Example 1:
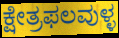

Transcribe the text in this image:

ಕ್ಷೇತ್ರಫಲವುಳ್ಳ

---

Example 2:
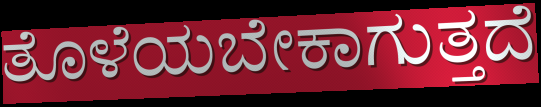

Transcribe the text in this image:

ತೊಳೆಯಬೇಕಾಗುತ್ತದೆ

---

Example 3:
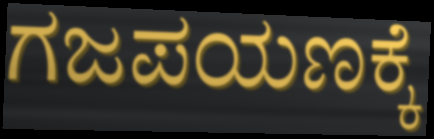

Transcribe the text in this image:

ಗಜಪಯಣಕ್ಕೆ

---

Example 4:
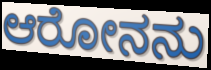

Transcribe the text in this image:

ಆರೋನನು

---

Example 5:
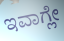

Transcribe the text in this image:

ಇವಾಗ್ಲೇ